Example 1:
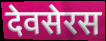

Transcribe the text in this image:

देवसेरस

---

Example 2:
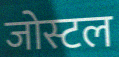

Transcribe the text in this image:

जोस्टल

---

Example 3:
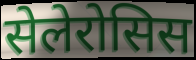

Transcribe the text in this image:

सेलेरोसिस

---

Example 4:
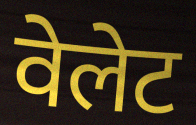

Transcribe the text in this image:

वेलेट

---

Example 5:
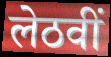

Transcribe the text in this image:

लेठवीं